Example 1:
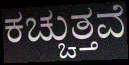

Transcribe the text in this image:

ಕಚ್ಚುತ್ತವೆ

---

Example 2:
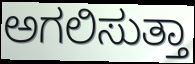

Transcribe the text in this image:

ಅಗಲಿಸುತ್ತಾ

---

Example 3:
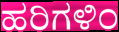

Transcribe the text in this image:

ಹರಿಗಳಿಂ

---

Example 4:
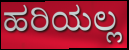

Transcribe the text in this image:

ಹರಿಯಲ್ಲ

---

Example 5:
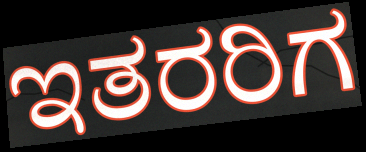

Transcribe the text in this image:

ಇತರರಿಗ